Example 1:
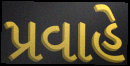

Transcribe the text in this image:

પ્રવાહે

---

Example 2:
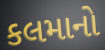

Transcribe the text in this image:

કલમાનો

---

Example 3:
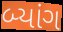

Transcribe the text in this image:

બ્યાંગ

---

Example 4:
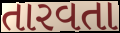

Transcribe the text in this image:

તારવતા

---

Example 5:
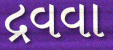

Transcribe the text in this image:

દ્રવવા